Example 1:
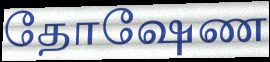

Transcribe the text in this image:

தோஷேண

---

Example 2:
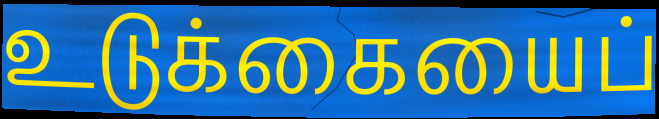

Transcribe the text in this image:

உடுக்கையைப்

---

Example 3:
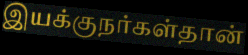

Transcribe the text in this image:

இயக்குநர்கள்தான்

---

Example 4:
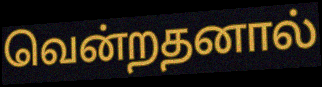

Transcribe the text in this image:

வென்றதனால்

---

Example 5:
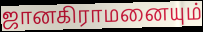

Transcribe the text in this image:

ஜானகிராமனையும்